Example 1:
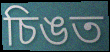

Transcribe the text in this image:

চিঙত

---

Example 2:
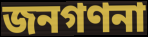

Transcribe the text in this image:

জনগণনা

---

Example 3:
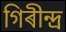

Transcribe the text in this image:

গিৰীন্দ্ৰ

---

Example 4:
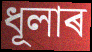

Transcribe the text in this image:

ধূলাৰ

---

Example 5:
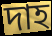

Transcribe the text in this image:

দাহ